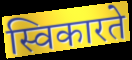
स्विकारते